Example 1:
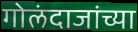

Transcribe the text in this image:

गोलंदाजांच्या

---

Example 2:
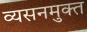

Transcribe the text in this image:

व्यसनमुक्त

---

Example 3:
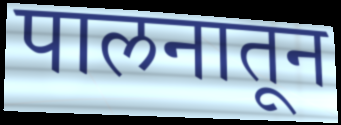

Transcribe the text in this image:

पालनातून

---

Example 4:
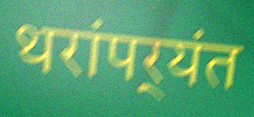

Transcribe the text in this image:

थरांपर्यंत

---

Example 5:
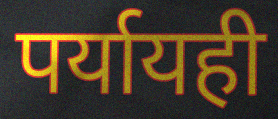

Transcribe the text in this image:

पर्यायही